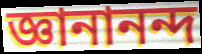
জ্ঞানানন্দ